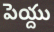
పెయ్దు